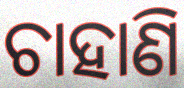
ଚାହାଣି